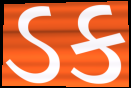
ડક